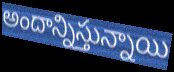
అందాన్నిస్తున్నాయి